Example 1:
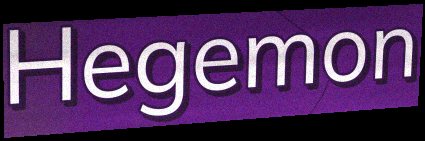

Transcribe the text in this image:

Hegemon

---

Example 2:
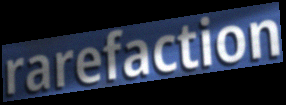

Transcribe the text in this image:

rarefaction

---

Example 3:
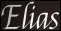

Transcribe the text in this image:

Elias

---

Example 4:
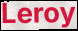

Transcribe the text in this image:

Leroy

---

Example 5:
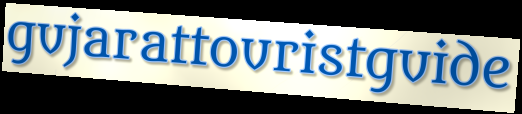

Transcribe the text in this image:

gujarattouristguide